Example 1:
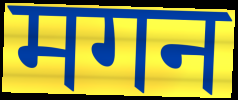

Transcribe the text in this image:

मगन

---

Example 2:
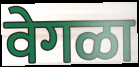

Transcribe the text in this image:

वेगळा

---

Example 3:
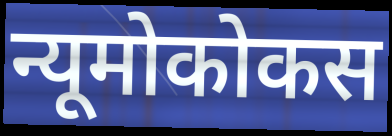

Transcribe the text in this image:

न्यूमोकोकस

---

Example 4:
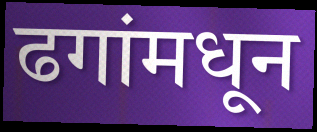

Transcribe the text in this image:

ढगांमधून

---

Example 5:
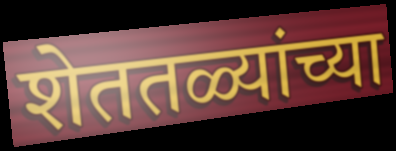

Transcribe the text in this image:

शेततळ्यांच्या